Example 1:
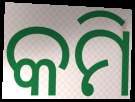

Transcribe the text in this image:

କମି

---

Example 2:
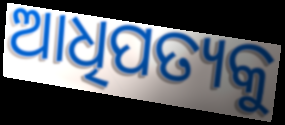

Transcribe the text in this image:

ଆଧିପତ୍ୟକୁ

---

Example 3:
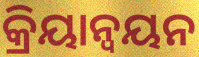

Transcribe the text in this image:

କ୍ରିୟାନ୍ଵୟନ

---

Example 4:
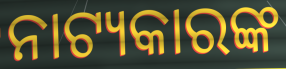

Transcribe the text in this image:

ନାଟ୍ୟକାରଙ୍କ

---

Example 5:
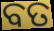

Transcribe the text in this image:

ବତ